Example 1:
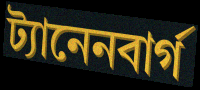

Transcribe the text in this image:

ট্যানেনবার্গ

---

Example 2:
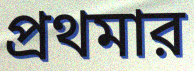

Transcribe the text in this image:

প্রথমার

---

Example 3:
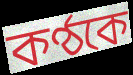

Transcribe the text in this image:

কণ্ঠকে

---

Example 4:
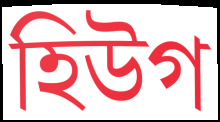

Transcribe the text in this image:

হিউগ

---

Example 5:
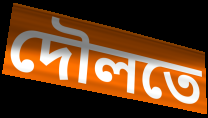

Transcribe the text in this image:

দৌলতে